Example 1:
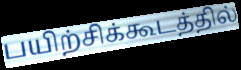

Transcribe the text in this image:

பயிற்சிக்கூடத்தில்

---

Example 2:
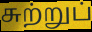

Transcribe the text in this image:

சுற்றுப்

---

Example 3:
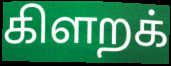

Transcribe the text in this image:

கிளறக்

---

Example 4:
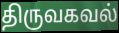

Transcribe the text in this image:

திருவகவல்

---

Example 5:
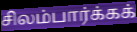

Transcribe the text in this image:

சிலம்பார்க்கக்